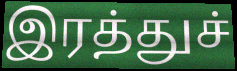
இரத்துச்